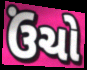
ઉંચો